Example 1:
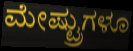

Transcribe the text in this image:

ಮೇಷ್ಟ್ರುಗಳೂ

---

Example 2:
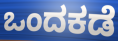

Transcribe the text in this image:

ಒಂದಕಡೆ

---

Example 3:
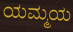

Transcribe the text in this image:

ಯಮ್ಮಯ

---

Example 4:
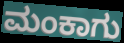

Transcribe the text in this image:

ಮಂಕಾಗು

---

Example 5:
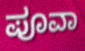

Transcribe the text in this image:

ಪೂವಾ